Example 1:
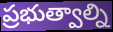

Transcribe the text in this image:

ప్రభుత్వాల్ని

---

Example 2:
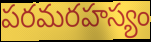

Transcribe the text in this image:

పరమరహస్యం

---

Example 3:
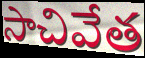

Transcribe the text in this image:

సాచివేత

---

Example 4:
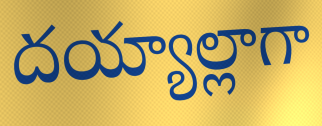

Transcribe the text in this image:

దయ్యాల్లాగా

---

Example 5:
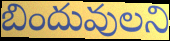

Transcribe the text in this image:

బిందువులని